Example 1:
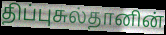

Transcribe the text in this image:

திப்புசுல்தானின்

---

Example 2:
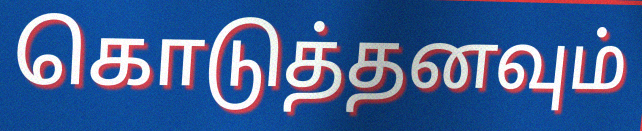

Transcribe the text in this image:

கொடுத்தனவும்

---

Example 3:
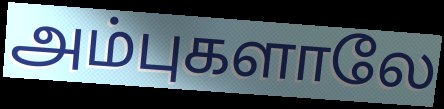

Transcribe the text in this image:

அம்புகளாலே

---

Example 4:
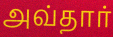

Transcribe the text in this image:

அவ்தார்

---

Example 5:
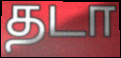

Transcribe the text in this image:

தடா